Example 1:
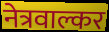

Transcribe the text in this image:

नेत्रवाल्कर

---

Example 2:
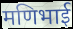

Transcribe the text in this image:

मणिभाई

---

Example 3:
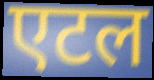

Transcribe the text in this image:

एटल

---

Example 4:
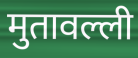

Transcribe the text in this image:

मुतावल्ली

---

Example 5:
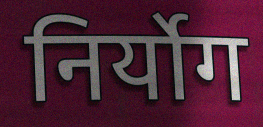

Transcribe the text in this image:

निर्योग